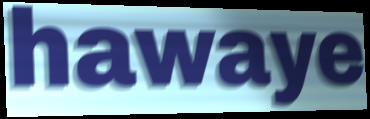
hawaye